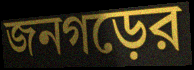
জনগড়ের